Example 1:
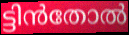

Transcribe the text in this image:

ട്ടിൻതോൽ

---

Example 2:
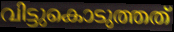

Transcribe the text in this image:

വിട്ടുകൊടുത്തത്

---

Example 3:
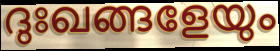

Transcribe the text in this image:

ദുഃഖങ്ങളേയും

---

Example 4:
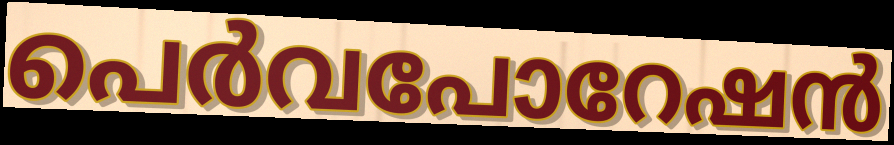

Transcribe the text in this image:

പെർവപോറേഷൻ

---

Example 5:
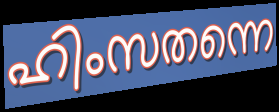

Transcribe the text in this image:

ഹിംസതന്നെ